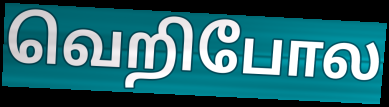
வெறிபோல